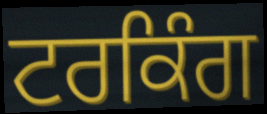
ਟਰਕਿੰਗ